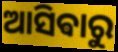
ଆସିଵାରୁ